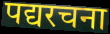
पद्यरचना